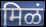
मिळं